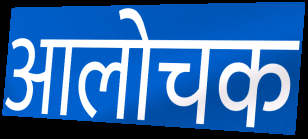
आलोचक